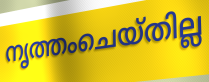
നൃത്തംചെയ്തില്ല